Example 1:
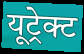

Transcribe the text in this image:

यूट्रेक्ट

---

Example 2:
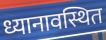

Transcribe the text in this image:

ध्यानावस्थित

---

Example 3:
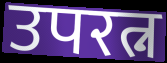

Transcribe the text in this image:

उपरत्न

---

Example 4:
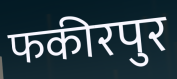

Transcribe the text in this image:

फकीरपुर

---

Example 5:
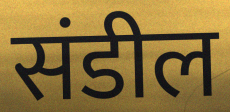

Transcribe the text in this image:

संडील